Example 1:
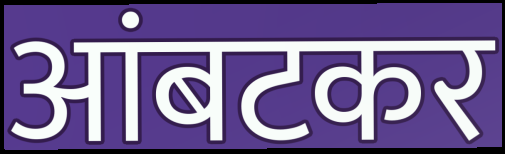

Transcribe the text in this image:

आंबटकर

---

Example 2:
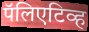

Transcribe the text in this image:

पॅलिएटिव्ह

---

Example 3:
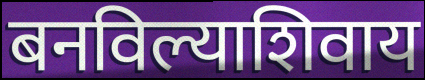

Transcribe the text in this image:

बनविल्याशिवाय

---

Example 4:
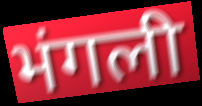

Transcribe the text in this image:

भंगली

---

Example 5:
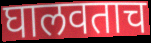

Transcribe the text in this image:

घालवताच